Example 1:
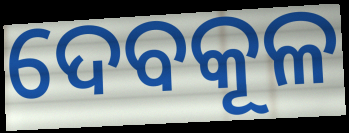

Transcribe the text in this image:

ଦେବକୂଳ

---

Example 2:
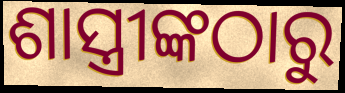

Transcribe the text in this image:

ଶାସ୍ତ୍ରୀଙ୍କଠାରୁ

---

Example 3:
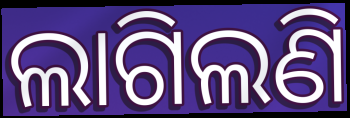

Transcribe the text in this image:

ଲାଗିଲଣି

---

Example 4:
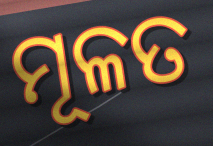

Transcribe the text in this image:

ମୂଳତ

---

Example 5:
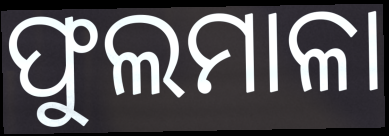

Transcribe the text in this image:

ଫୁଲମାଳା